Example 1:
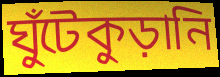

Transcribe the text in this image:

ঘুঁটেকুড়ানি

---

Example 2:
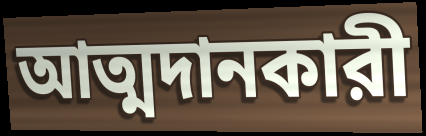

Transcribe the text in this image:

আত্মদানকারী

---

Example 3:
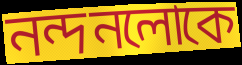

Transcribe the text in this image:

নন্দনলোকে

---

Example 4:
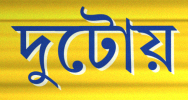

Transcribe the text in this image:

দুটোয়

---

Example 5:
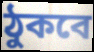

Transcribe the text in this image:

ঠুকবে